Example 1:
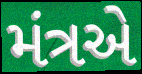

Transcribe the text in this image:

મંત્રએ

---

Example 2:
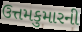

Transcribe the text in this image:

ઉત્તમકુમારની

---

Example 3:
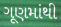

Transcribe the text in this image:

ગૂણમાંથી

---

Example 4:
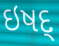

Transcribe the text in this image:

ઇષદ્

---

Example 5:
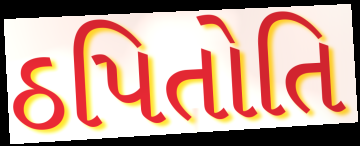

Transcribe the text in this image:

ઠપિતોતિ